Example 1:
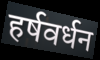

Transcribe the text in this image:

हर्षवर्धन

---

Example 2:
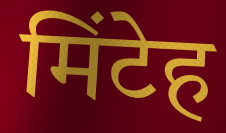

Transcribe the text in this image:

मिंटेह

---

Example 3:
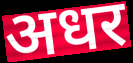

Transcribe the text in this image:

अधर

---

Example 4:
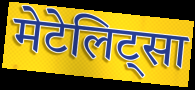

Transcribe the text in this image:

मेटेलिट्सा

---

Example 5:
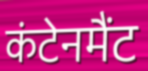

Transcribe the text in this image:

कंटेनमैंट